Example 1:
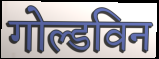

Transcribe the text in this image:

गोल्डविन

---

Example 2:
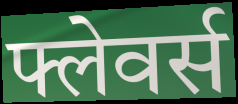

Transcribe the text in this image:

फ्लेवर्स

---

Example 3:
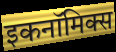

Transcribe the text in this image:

इकनॉमिक्स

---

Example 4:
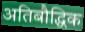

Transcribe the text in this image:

अतिबौद्धिक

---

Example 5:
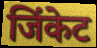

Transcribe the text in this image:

जिंकेट